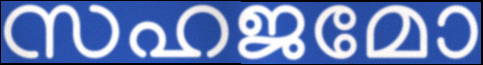
സഹജമോ